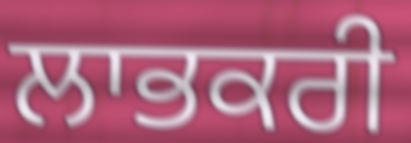
ਲਾਭਕਰੀ